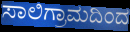
ಸಾಲಿಗ್ರಾಮದಿಂದ